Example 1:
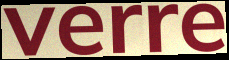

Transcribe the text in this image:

verre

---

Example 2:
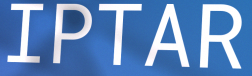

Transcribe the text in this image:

IPTAR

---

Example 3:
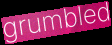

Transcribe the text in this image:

grumbled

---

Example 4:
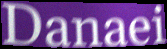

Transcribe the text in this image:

Danaei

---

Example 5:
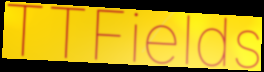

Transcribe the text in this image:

TTFields